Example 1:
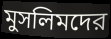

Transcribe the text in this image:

মুসলিমদের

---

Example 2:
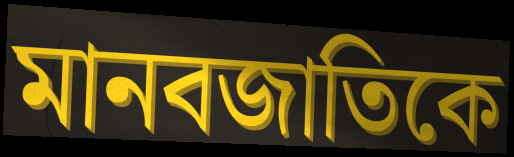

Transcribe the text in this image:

মানবজাতিকে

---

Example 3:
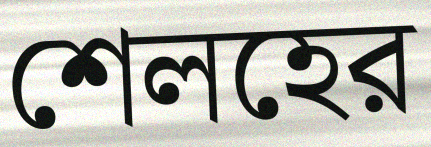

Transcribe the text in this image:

শেলহের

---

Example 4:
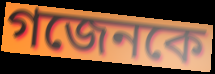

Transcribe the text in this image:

গজেনকে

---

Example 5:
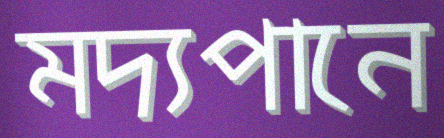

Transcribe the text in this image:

মদ্যপানে